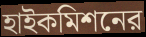
হাইকমিশনের